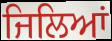
ਜਿਲਿਆਂ